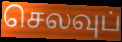
செலவுப்